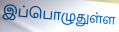
இப்பொழுதுள்ள